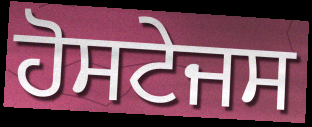
ਹੋਸਟੇਜਸ